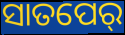
ସାତପେର୍